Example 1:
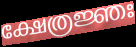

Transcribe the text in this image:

ക്ഷേത്രജ്ഞഃ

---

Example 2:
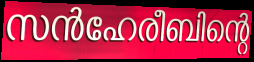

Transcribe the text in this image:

സൻഹേരീബിന്റെ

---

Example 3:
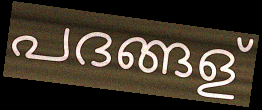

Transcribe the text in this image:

പദങ്ങള്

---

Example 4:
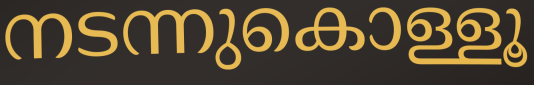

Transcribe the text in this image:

നടന്നുകൊള്ളൂ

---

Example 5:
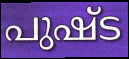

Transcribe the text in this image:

പുഷ്ട